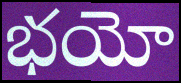
భయో